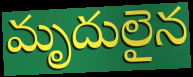
మృదులైన